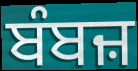
ਬੰਬਜ਼